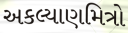
અકલ્યાણમિત્રો